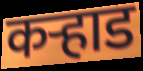
कऱ्हाड